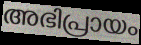
അഭിപ്രായം